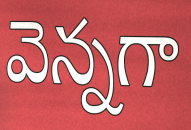
వెన్నగా